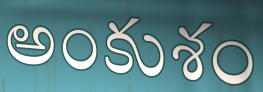
అంకుశం